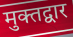
मुक्तद्वार